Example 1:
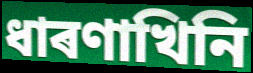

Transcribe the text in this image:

ধাৰণাখিনি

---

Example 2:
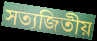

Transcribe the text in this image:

সত্যজিতীয়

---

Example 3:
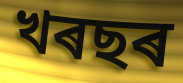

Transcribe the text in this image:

খৰছৰ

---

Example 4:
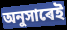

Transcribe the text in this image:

অনুসাৰেই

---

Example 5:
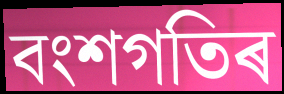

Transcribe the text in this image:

বংশগতিৰ